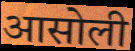
आसोली